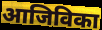
आजिविका